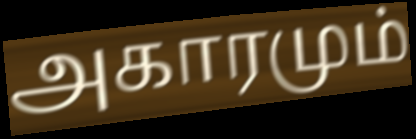
அகாரமும்